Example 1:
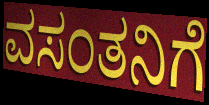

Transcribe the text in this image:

ವಸಂತನಿಗೆ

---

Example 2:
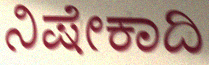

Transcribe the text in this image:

ನಿಷೇಕಾದಿ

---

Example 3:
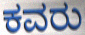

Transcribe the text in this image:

ಕವರು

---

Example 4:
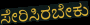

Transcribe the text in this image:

ಸೇರಿಸಿರಬೇಕು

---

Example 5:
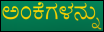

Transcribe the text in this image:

ಅಂಕೆಗಳನ್ನು